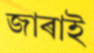
জাৰাই